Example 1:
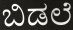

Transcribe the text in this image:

ಬಿಡಲೆ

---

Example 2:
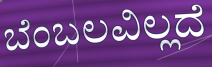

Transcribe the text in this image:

ಬೆಂಬಲವಿಲ್ಲದೆ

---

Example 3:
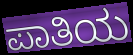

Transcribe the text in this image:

ಪಾತಿಯ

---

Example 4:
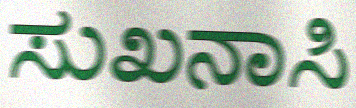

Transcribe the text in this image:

ಸುಖನಾಸಿ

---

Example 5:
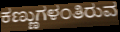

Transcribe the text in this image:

ಕಣ್ಣುಗಳಂತಿರುವ